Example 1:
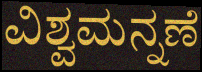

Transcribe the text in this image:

ವಿಶ್ವಮನ್ನಣೆ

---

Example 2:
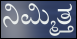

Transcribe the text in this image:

ನಿಮ್ಮಿತ್ತ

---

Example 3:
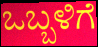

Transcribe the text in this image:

ಒಬ್ಬಳಿಗೆ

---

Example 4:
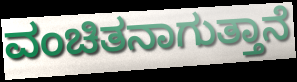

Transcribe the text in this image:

ವಂಚಿತನಾಗುತ್ತಾನೆ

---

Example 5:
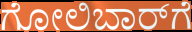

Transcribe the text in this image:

ಗೋಲಿಬಾರ್‌ಗೆ